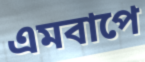
এমবাপে